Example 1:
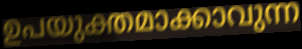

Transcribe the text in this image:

ഉപയുക്തമാക്കാവുന്ന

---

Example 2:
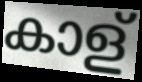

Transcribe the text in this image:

കാള്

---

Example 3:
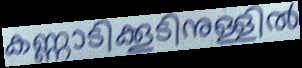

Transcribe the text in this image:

കണ്ണാടിക്കൂടിനുള്ളിൽ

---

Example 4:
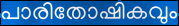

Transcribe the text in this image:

പാരിതോഷികവും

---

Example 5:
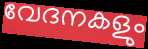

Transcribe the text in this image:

വേദനകളും